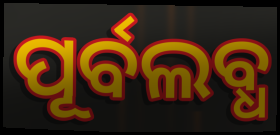
ପୂର୍ବଲବ୍ଧ